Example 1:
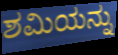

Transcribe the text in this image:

ಶಮಿಯನ್ನು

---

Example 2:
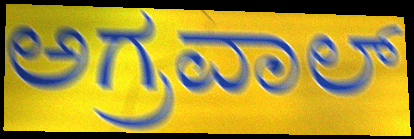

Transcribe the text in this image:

ಅಗ್ರವಾಲ್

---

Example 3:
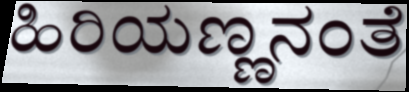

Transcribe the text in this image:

ಹಿರಿಯಣ್ಣನಂತೆ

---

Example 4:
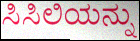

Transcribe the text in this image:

ಸಿಸಿಲಿಯನ್ನು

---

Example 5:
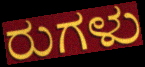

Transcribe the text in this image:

ರುಗಳು